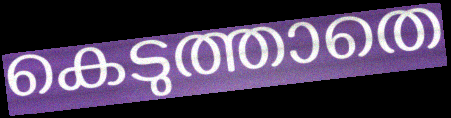
കെടുത്താതെ